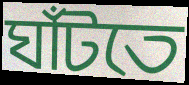
ঘাঁটতে